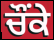
ਚੌਂਕੇ